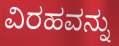
ವಿರಹವನ್ನು